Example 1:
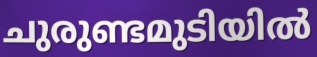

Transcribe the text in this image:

ചുരുണ്ടമുടിയിൽ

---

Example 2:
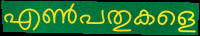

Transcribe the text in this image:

എൺപതുകളെ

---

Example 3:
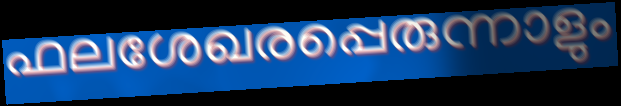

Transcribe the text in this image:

ഫലശേഖരപ്പെരുന്നാളും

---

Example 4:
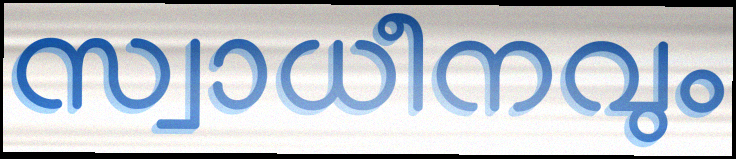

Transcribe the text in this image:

സ്വാധീനവും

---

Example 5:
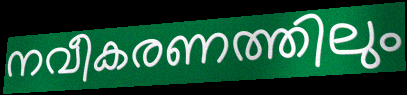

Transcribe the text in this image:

നവീകരണത്തിലും